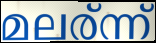
മലര്ന്ന്